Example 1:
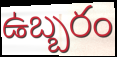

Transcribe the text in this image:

ఉబ్బరం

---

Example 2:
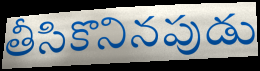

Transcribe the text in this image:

తీసికొనినపుడు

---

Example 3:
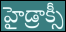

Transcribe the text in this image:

హైడ్రాక్సీ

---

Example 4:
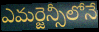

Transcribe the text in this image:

ఎమర్జెన్సీలోనే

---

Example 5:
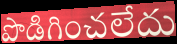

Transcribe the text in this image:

పొడిగించలేదు